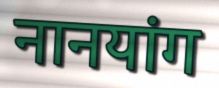
नानयांग